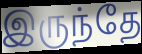
இருந்தே